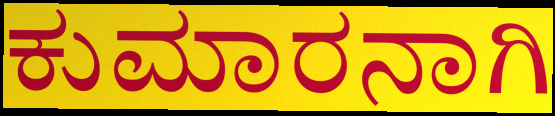
ಕುಮಾರನಾಗಿ